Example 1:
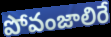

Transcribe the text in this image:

పోవంజాలిరే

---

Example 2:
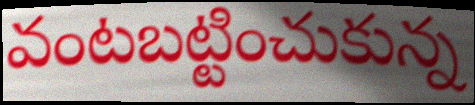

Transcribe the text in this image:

వంటబట్టించుకున్న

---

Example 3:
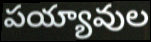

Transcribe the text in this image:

పయ్యావుల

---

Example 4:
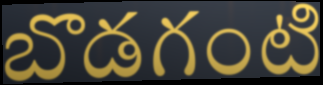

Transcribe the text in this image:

బొడగంటి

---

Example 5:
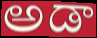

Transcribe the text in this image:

అడా